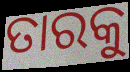
ତାରକୁ